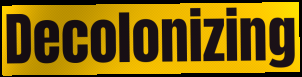
Decolonizing